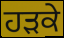
ਹੜਕੇ